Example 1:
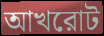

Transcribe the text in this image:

আখরোট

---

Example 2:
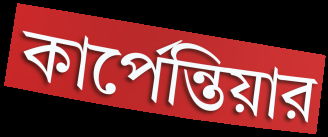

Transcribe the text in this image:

কার্পেন্তিয়ার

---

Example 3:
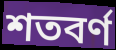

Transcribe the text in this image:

শতবর্ণ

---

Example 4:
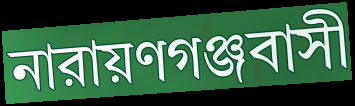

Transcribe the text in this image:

নারায়ণগঞ্জবাসী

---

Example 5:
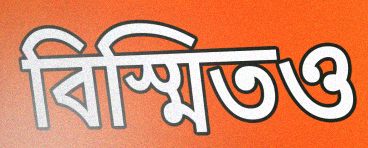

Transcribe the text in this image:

বিস্মিতও